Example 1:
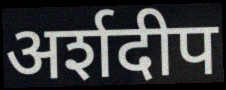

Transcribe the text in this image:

अर्शदीप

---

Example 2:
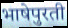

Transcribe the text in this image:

भाषेपुरती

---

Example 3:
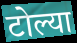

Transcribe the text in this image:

टोल्या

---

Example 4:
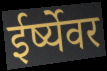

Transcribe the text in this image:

ईर्ष्येवर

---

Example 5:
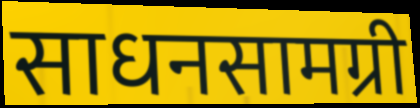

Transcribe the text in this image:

साधनसामग्री